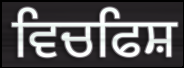
ਵਿਚਫਿਸ਼